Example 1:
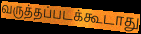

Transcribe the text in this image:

வருத்தப்படக்கூடாது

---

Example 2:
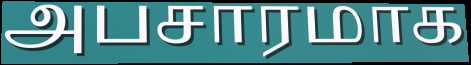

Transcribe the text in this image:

அபசாரமாக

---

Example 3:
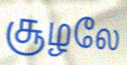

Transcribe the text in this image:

சூழலே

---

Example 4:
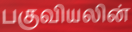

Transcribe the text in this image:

பகுவியலின்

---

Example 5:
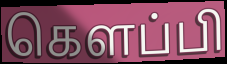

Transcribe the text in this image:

கெளப்பி